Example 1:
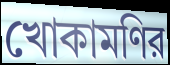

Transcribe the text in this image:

খোকামণির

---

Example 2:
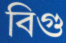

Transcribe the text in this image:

বিগু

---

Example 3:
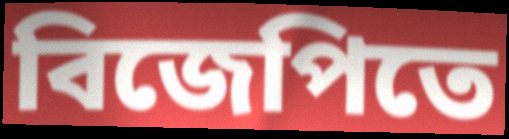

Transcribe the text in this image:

বিজেপিতে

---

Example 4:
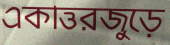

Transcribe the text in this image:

একাত্তরজুড়ে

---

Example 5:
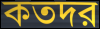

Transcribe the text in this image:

কতদর